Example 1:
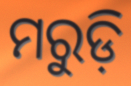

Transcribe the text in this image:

ମରୁଡ଼ି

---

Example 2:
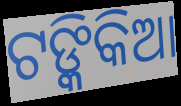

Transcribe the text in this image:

ଟଙ୍କିକିଆ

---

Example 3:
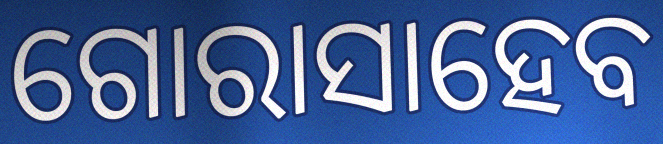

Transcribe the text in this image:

ଗୋରାସାହେବ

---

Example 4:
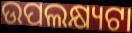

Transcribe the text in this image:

ଉପଲକ୍ଷ୍ୟଟା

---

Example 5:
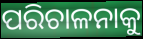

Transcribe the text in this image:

ପରିଚାଳନାକୁ